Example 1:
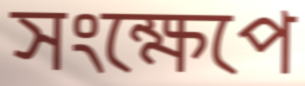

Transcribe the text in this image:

সংক্ষেপে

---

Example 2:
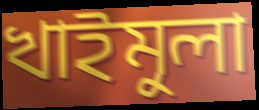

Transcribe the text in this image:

খাইমুলা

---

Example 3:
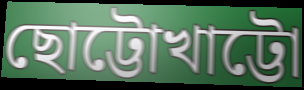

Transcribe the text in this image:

ছোট্টোখাট্টো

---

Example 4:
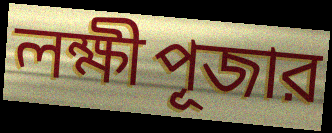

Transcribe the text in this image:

লক্ষীপূজার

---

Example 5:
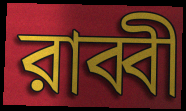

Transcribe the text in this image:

রাব্বী